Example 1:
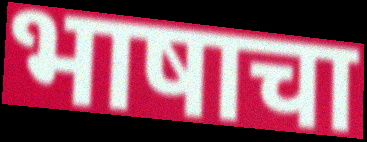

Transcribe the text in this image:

भाषाचा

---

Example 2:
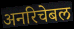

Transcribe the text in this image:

अनरिचेबल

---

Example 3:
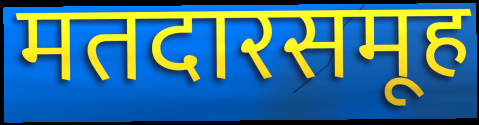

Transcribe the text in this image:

मतदारसमूह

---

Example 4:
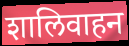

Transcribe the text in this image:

शालिवाहन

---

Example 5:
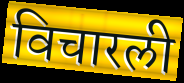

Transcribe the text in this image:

विचारली